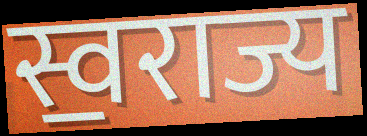
स्व॒राज्य